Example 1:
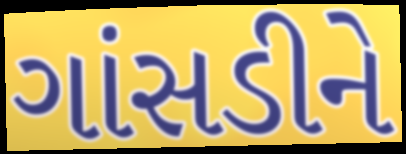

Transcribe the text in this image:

ગાંસડીને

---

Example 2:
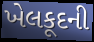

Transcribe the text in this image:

ખેલકૂદની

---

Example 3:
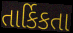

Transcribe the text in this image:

તાર્કિકતા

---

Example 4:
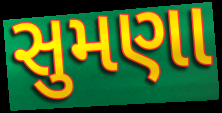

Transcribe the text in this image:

સુમણા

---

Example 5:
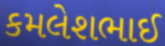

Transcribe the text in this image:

કમલેશભાઈ